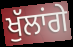
ਖੁੱਲਾਂਗੇ